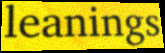
leanings